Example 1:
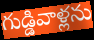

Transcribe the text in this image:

గుడ్డివాళ్లను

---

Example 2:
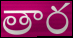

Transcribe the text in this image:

తార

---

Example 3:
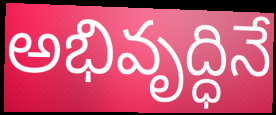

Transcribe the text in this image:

అభివృద్ధినే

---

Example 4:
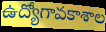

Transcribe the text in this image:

ఉద్యోగావకాశాల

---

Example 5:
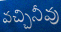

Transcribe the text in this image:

వచ్చినీవు